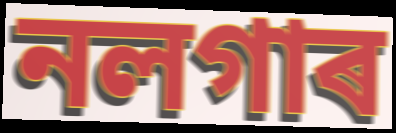
নলগাৰ